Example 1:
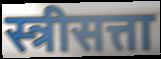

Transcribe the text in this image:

स्त्रीसत्ता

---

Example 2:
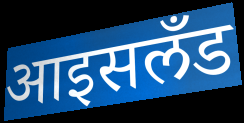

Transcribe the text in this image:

आइसलँड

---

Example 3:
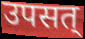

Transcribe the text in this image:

उपसत्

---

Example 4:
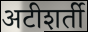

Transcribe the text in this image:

अटीशर्ती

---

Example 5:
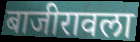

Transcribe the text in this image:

बाजीरावला